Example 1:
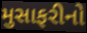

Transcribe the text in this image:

મુસાફરીનો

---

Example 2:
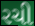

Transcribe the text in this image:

રચી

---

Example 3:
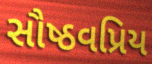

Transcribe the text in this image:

સૌષ્ઠવપ્રિય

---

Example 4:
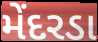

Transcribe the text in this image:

મેંદરડા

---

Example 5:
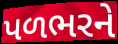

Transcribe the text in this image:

પળભરને